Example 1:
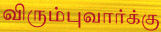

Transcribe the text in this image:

விரும்புவார்க்கு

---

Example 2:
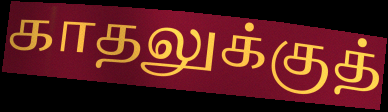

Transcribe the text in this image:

காதலுக்குத்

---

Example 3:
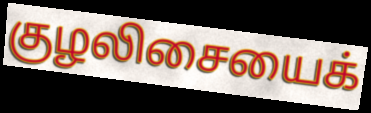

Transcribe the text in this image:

குழலிசையைக்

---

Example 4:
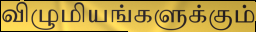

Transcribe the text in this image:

விழுமியங்களுக்கும்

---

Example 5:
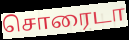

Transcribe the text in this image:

சொரைடா